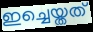
ഇച്ചെയ്തത്